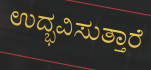
ಉದ್ಭವಿಸುತ್ತಾರೆ